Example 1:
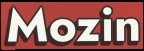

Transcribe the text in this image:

Mozin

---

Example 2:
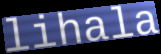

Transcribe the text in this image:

lihala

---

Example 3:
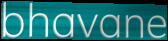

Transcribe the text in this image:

bhavane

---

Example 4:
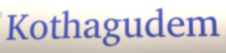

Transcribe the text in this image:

Kothagudem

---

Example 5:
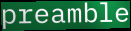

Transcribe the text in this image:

preamble